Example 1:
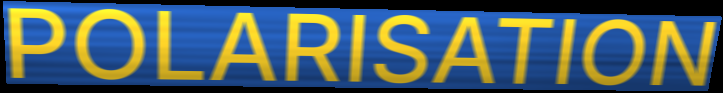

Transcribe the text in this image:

POLARISATION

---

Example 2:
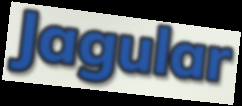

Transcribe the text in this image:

Jagular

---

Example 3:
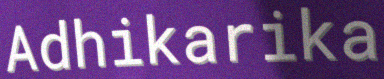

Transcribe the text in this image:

Adhikarika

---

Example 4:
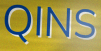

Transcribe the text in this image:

QINS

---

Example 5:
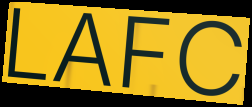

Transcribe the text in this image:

LAFC